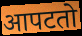
आपटतो